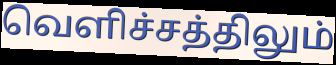
வெளிச்சத்திலும்